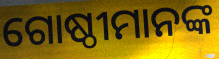
ଗୋଷ୍ଠୀମାନଙ୍କ